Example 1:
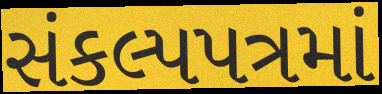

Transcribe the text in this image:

સંકલ્પપત્રમાં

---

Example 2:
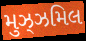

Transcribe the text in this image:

મુઝ્ઝમિલ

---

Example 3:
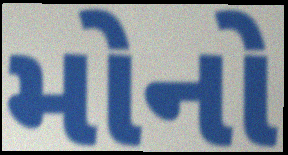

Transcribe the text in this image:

મોનો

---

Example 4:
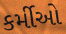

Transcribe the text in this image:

કર્મીઓ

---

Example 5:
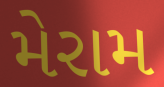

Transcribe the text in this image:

મેરામ